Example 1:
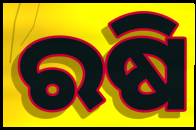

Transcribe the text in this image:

ରଷି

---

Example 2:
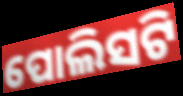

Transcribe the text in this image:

ପୋଲିସଟି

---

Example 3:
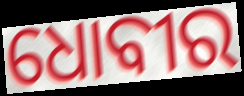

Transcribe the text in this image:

ଧୋବୀର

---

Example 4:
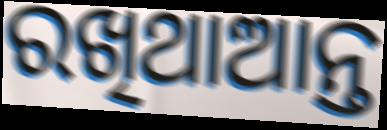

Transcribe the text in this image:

ରଖିଥାଆନ୍ତ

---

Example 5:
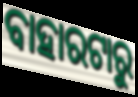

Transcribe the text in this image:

ବାହାରଟାରୁ